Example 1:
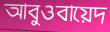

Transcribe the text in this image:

আবুওবায়েদ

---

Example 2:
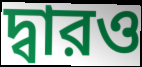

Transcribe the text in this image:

দ্বারও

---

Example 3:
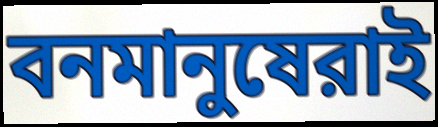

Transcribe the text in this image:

বনমানুষেরাই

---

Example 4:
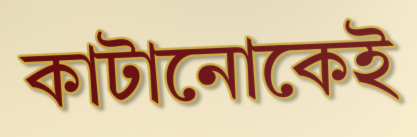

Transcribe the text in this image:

কাটানোকেই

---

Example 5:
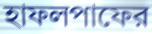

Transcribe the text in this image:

হাফলপাফের